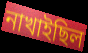
নাখাইছিল